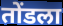
तोंडला